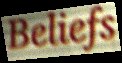
Beliefs